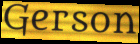
Gerson